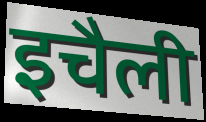
इचैली